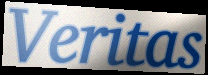
Veritas